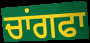
ਚਾਂਗਫਾ